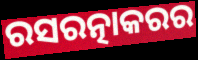
ରସରତ୍ନାକରର